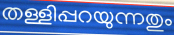
തള്ളിപ്പറയുന്നതും